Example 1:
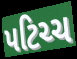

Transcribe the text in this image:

પટિચ્ચ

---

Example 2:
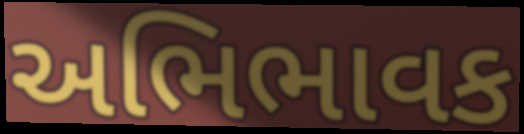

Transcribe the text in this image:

અભિભાવક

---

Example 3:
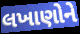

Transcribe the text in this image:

લખાણોને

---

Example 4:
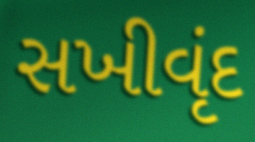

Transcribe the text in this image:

સખીવૃંદ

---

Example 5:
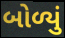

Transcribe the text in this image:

બોળ્યું